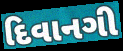
દિવાનગી